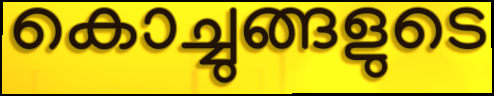
കൊച്ചുങ്ങളുടെ